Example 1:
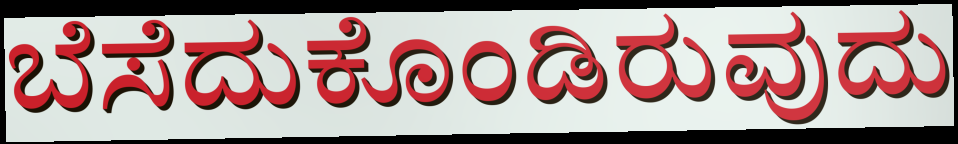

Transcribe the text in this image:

ಬೆಸೆದುಕೊಂಡಿರುವುದು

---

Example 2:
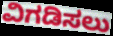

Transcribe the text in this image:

ವಿಗಡಿಸಲು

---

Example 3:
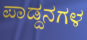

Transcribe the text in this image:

ಪಾಡ್ದನಗಳ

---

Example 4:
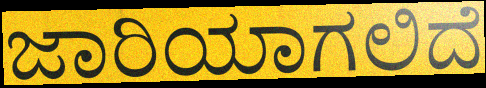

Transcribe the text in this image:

ಜಾರಿಯಾಗಲಿದೆ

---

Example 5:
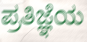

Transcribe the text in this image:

ಪ್ರತಿಜ್ಞೆಯ